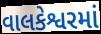
વાલકેશ્વરમાં